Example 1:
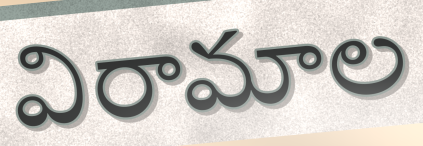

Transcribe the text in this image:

విరామాల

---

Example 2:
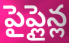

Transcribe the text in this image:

పైప్లైన్ల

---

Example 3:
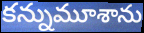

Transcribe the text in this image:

కన్నుమూశాను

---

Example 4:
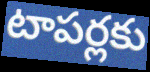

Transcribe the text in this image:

టాపర్లకు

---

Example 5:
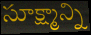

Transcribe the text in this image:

సూక్ష్మాన్ని